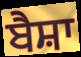
ਬੈਸ਼ਾ